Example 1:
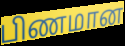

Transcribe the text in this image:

பிணமான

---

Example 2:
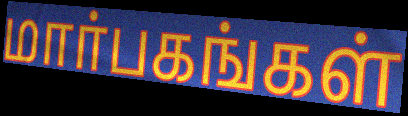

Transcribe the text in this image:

மார்பகங்கள்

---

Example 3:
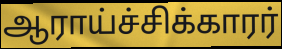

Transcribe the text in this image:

ஆராய்ச்சிக்காரர்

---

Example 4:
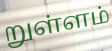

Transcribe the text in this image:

றுள்ளம்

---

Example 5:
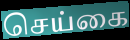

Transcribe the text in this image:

செய்கை